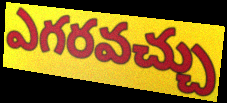
ఎగరవచ్చు